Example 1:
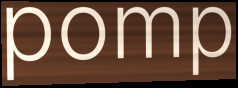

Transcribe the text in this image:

pomp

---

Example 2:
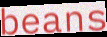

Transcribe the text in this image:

beans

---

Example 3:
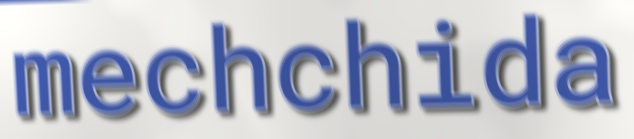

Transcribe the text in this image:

mechchida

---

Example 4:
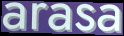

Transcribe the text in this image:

arasa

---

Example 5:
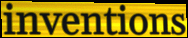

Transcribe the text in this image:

inventions